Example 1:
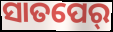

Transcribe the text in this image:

ସାତପେର୍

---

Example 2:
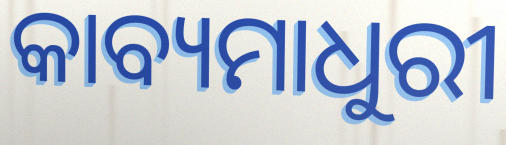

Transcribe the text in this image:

କାବ୍ୟମାଧୁରୀ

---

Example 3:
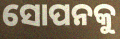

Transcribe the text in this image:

ସୋପନକୁ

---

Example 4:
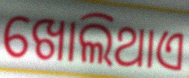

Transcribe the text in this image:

ଖୋଲିଥାଏ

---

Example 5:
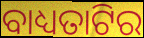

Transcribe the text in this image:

ବାଧ୍ୟତାଟିର